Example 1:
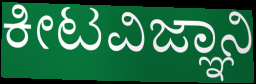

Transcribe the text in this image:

ಕೀಟವಿಜ್ಞಾನಿ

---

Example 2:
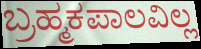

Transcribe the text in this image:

ಬ್ರಹ್ಮಕಪಾಲವಿಲ್ಲ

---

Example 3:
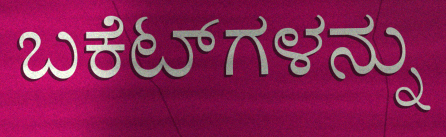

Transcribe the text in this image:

ಬಕೆಟ್‌ಗಳನ್ನು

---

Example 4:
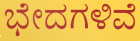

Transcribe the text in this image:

ಭೇದಗಳಿವೆ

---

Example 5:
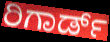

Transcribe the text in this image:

ರಿಗಾರ್ಡ್